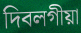
দিবলগীয়া